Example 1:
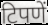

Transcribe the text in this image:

टिपणें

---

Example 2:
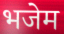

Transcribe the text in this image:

भजेम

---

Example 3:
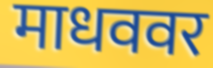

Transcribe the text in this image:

माधववर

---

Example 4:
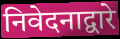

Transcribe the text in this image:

निवेदनाद्वारे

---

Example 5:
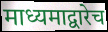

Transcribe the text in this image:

माध्यमाद्वारेच